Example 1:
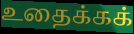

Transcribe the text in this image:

உதைக்கக்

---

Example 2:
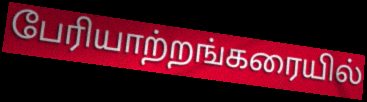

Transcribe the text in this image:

பேரியாற்றங்கரையில்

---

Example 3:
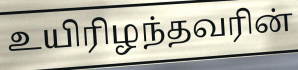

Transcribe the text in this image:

உயிரிழந்தவரின்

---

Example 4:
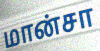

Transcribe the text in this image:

மான்சா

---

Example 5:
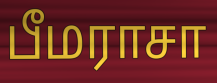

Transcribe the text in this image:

பீமராசா